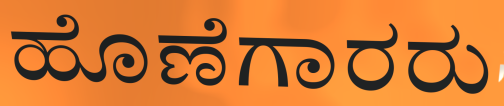
ಹೊಣೆಗಾರರು